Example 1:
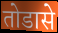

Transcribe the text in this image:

तोडासे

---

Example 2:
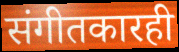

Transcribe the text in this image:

संगीतकारही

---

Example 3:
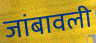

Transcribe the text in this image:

जांबावली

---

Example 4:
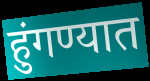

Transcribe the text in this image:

हुंगण्यात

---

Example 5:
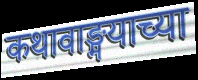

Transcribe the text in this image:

कथावाङ्मयाच्या